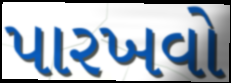
પારખવો